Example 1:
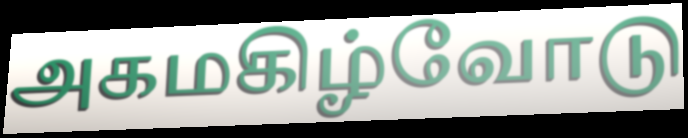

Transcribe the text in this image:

அகமகிழ்வோடு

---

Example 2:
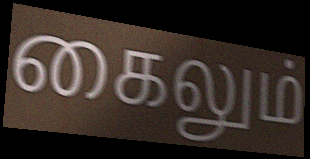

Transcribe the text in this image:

கைலும்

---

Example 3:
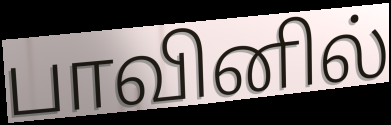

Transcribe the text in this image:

பாவினில்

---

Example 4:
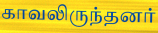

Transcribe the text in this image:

காவலிருந்தனர்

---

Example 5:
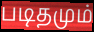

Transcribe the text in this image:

படிதமும்